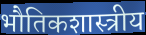
भौतिकशास्त्रीय